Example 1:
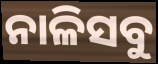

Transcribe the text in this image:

ନାଳିସବୁ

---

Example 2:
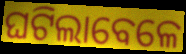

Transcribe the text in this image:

ଘଟିଲାବେଳେ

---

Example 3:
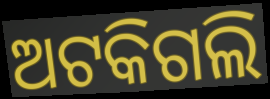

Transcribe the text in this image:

ଅଟକିଗଲି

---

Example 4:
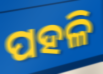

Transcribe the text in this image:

ପହଳି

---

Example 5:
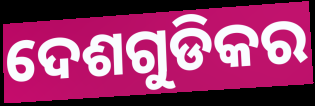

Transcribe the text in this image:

ଦେଶଗୁଡିକର